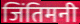
जिंतिमनी